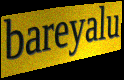
bareyalu